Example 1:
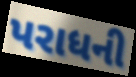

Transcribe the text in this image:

પરાધની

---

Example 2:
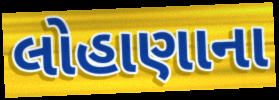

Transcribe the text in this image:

લોહાણાના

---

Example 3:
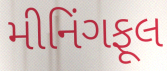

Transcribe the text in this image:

મીનિંગફૂલ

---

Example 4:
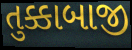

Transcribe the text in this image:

તુક્કાબાજી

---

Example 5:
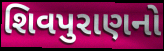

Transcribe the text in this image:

શિવપુરાણનો